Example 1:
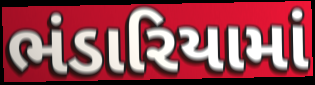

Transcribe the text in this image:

ભંડારિયામાં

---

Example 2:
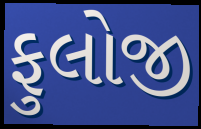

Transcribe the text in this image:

ફુલોજી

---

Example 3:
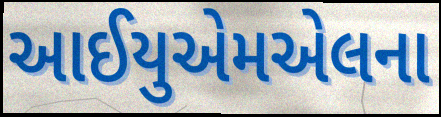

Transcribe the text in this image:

આઈયુએમએલના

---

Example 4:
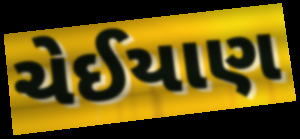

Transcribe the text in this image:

ચેઈયાણ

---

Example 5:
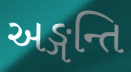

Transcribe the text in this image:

અઙ્ગન્તિ